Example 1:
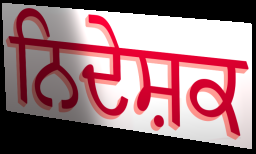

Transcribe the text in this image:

ਨਿਦੇਸ਼ਕ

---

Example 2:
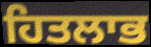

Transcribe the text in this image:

ਹਿਤਲਾਭ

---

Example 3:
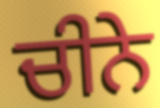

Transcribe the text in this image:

ਚੀਨੇ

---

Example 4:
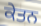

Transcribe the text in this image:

ਕੇਤਨ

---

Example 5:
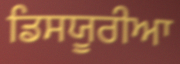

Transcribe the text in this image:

ਡਿਸਯੂਰੀਆ